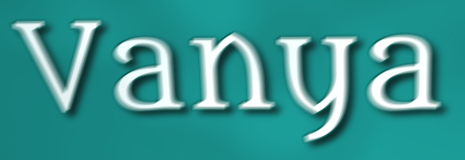
Vanya